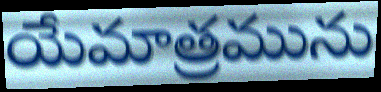
యేమాత్రమును